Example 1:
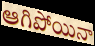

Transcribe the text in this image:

ఆగిపోయినా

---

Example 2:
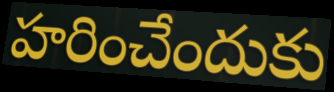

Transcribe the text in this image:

హరించేందుకు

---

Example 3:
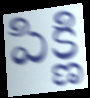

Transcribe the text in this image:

పిక్ణి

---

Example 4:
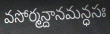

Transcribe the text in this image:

వసోర్మన్దానమన్ధసః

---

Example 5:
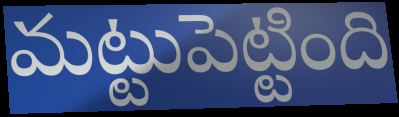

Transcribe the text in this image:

మట్టుపెట్టింది